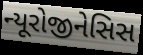
ન્યૂરોજીનેસિસ